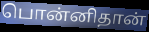
பொன்னிதான்